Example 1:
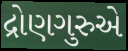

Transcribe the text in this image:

દ્રોણગુરુએ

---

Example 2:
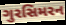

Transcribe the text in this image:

ગુરસિમરન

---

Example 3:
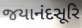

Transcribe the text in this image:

જયાનંદસૂરિ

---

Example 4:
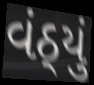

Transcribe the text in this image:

વંઠ્યું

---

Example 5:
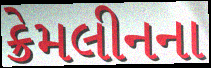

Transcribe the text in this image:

ક્રેમલીનના